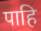
पाहि